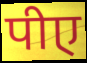
पीए